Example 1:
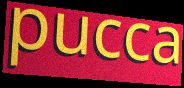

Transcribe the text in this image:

pucca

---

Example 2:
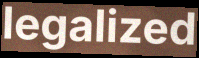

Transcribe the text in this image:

legalized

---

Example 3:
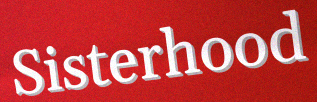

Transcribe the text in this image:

Sisterhood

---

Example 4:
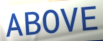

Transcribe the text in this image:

ABOVE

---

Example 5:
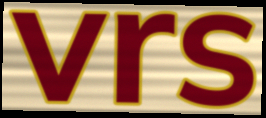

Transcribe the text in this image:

vrs